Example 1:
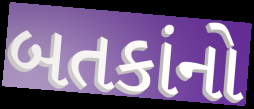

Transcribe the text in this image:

બતકાંનો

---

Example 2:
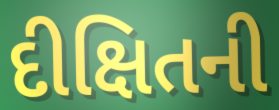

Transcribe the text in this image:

દીક્ષિતની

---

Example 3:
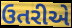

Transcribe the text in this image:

ઉતરીએ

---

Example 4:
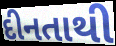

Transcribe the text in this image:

દીનતાથી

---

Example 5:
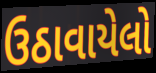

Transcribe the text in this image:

ઉઠાવાયેલો